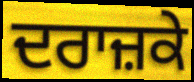
ਦਰਾਜ਼ਕੇ